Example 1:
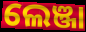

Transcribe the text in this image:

ଲେଞ୍ଜା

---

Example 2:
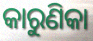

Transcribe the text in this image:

କାରୁଣିକା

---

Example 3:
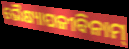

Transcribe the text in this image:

ଭୈକ୍ଷ୍ୟାପଜୀବିନାମ୍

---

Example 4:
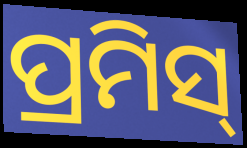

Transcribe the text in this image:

ପ୍ରମିସ୍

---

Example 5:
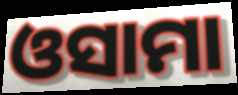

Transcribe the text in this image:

ଓସାମା